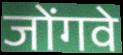
जोंगवे